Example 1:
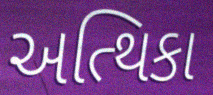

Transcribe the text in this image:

અત્થિકા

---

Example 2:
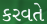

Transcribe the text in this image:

કરવતે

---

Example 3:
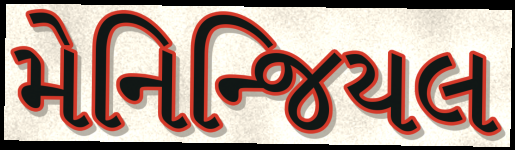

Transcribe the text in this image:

મેનિન્જિયલ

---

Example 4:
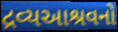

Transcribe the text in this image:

દ્રવ્યઆશ્રવનો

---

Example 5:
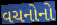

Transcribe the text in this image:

વચનોનો